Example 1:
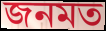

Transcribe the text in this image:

জনমত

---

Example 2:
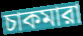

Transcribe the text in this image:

চাকমারা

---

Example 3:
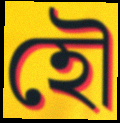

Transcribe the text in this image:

হৌ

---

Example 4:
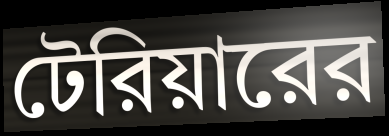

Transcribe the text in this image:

টেরিয়ারের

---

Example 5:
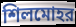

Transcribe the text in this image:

শিলমোহর